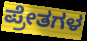
ಪ್ರೇತಗಳ